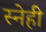
स्नेही